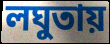
লঘুতায়